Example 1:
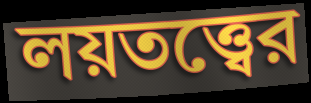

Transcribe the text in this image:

লয়তত্ত্বের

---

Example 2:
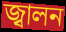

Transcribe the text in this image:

জ্বালন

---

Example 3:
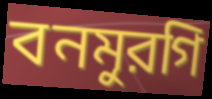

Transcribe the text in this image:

বনমুরগি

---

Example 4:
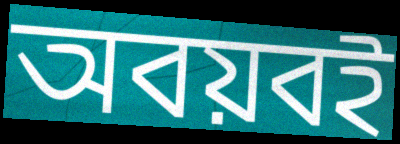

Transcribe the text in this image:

অবয়বই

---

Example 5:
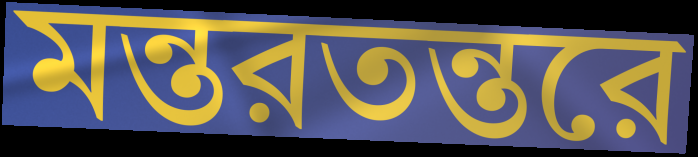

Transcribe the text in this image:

মন্তরতন্তরে